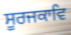
ਸੂਰਜਕਾਵਿ